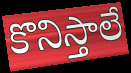
కొనిస్తాలే